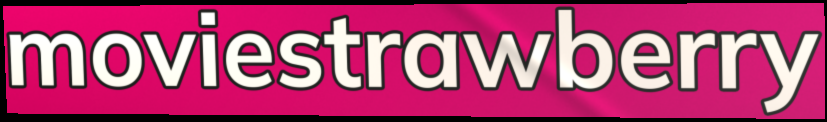
moviestrawberry